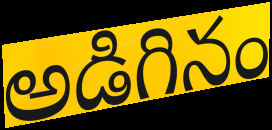
అడిగినం